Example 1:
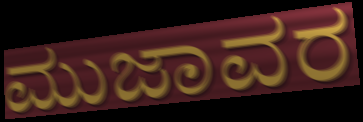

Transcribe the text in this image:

ಮುಜಾವರ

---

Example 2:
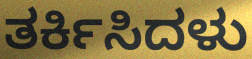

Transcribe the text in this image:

ತರ್ಕಿಸಿದಳು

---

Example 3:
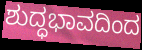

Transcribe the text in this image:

ಶುದ್ಧಭಾವದಿಂದ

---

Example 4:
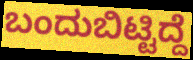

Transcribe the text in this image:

ಬಂದುಬಿಟ್ಟಿದ್ದೆ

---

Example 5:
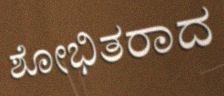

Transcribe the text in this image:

ಶೋಭಿತರಾದ